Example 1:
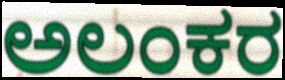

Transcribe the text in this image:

ಅಲಂಕರ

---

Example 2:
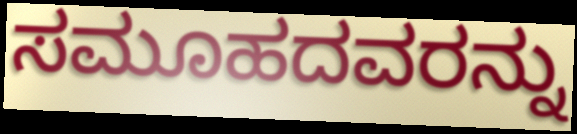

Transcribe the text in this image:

ಸಮೂಹದವರನ್ನು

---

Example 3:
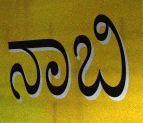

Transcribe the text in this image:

ನಾಬಿ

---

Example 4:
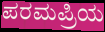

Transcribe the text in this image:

ಪರಮಪ್ರಿಯ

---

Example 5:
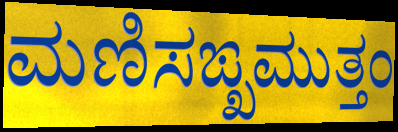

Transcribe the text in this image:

ಮಣಿಸಙ್ಖಮುತ್ತಂ